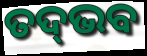
ତଦ୍‌ଭବ